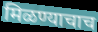
मिळण्याचाच